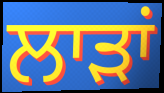
ਲਾੜਾਂ